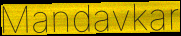
Mandavkar